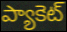
ప్యాకెట్